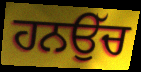
ਹਨਉੱਚ